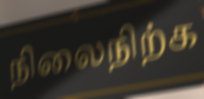
நிலைநிற்க